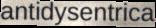
antidysentrica